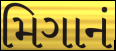
મિગાનં